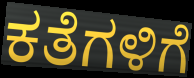
ಕತೆಗಳಿಗೆ